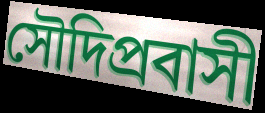
সৌদিপ্রবাসী